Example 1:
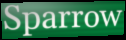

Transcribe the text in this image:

Sparrow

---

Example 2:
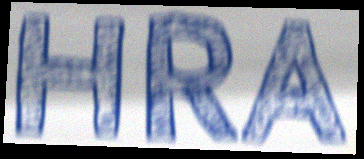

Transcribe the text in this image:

HRA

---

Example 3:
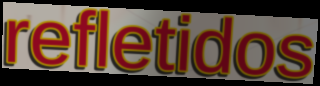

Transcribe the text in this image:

refletidos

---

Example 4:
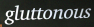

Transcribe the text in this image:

gluttonous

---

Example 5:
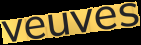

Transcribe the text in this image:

veuves